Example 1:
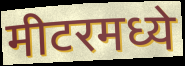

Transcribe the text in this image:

मीटरमध्ये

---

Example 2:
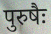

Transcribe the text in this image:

पुरुषैः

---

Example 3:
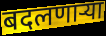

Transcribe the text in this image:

बदलणाऱ्या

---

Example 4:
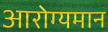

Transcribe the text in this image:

आरोग्यमान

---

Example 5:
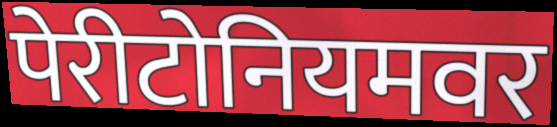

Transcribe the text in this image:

पेरीटोनियमवर